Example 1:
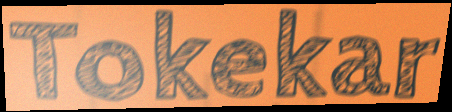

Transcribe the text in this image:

Tokekar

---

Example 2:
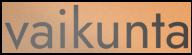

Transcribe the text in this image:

vaikunta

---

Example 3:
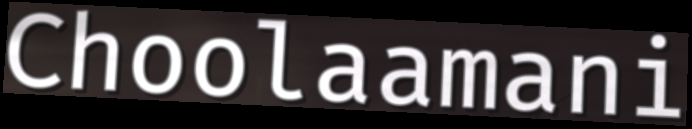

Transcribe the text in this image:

Choolaamani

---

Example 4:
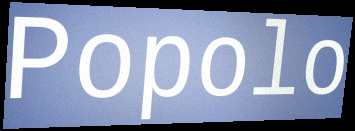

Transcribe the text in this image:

Popolo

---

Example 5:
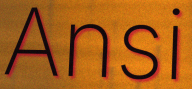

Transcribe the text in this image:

Ansi